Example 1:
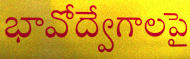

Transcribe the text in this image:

భావోద్వేగాలపై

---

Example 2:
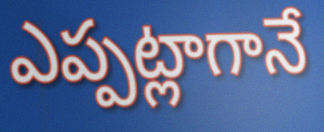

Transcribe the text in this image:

ఎప్పట్లాగానే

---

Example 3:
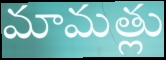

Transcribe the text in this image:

మామత్లు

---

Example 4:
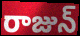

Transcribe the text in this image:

రాజున్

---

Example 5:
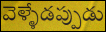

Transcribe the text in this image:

వెళ్ళేడప్పుడు